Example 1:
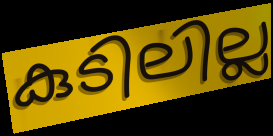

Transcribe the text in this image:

കുടിലില്ല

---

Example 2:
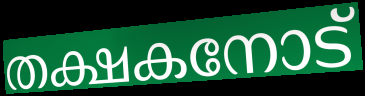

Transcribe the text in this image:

തക്ഷകനോട്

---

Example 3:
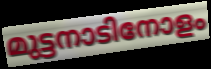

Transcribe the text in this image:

മുട്ടനാടിനോളം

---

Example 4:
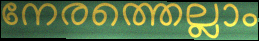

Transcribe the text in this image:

നേരത്തെല്ലാം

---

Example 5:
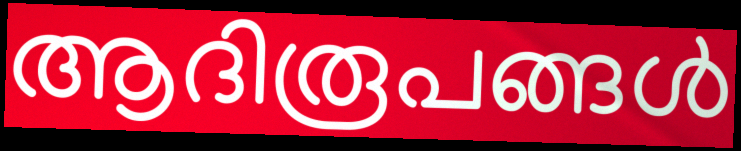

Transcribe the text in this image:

ആദിരൂപങ്ങൾ